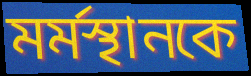
মর্মস্থানকে